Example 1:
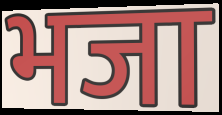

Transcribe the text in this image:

भजा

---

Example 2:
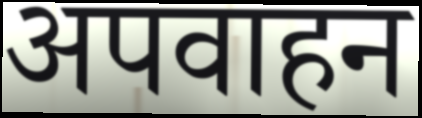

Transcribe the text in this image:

अपवाहन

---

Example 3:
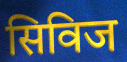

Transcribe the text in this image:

सिविज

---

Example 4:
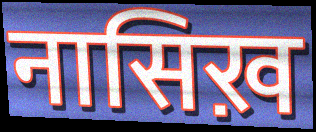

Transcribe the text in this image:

नासिख़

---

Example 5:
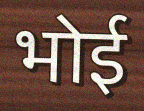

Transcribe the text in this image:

भोई